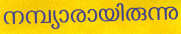
നമ്പ്യാരായിരുന്നു